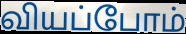
வியப்போம்